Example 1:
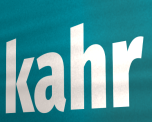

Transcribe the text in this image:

kahr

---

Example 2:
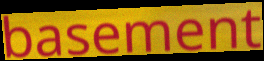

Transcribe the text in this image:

basement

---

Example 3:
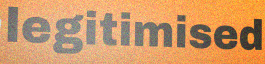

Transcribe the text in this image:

legitimised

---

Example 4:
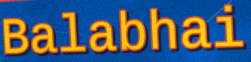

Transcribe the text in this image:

Balabhai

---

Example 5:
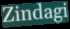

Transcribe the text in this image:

Zindagi